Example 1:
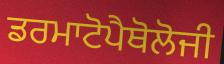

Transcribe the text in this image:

ਡਰਮਾਟੋਪੈਥੋਲੋਜੀ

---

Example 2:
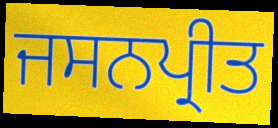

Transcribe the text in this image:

ਜਸਨਪ੍ਰੀਤ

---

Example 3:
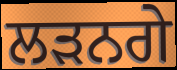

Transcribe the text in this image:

ਲੜਨਗੇ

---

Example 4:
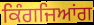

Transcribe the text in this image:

ਕਿੰਗਜਿਆਂਗ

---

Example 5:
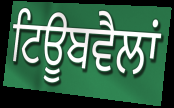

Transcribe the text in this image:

ਟਿਊਬਵੈਲਾਂ